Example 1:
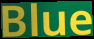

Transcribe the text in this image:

Blue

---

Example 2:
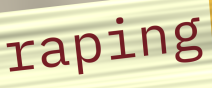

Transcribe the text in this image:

raping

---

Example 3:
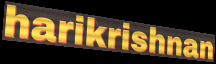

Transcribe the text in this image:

harikrishnan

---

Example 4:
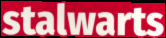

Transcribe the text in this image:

stalwarts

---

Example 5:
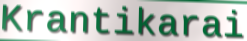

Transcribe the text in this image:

Krantikarai